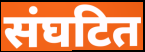
संघटित